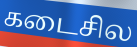
கடைசில